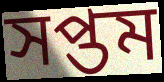
সপ্তম